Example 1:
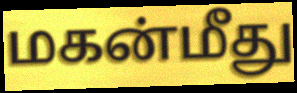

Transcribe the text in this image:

மகன்மீது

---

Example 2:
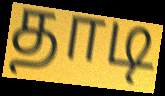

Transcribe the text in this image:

தாடி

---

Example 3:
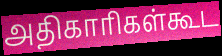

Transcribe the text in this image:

அதிகாரிகள்கூட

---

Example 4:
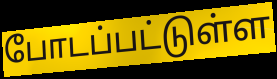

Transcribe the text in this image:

போடப்பட்டுள்ள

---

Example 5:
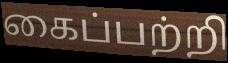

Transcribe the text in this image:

கைப்பற்றி